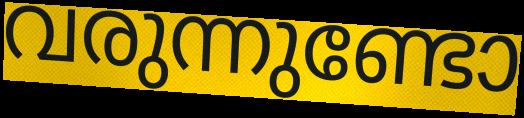
വരുന്നുണ്ടോ